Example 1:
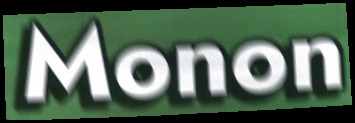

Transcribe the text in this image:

Monon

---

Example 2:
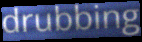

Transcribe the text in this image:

drubbing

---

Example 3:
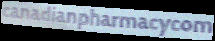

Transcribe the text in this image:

canadianpharmacycom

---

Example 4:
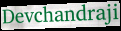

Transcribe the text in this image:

Devchandraji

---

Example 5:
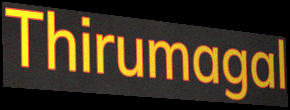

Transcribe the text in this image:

Thirumagal